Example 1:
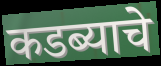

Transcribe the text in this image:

कडब्याचे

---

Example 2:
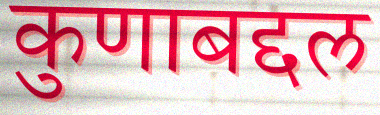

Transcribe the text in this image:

कुणाबद्दल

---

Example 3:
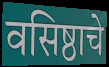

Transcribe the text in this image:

वसिष्ठाचे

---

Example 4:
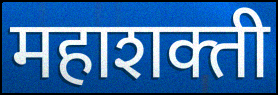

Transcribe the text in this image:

महाशक्‍ती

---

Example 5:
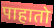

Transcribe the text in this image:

पाहातो